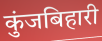
कुंजबिहारी